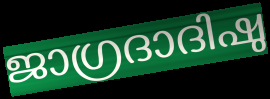
ജാഗ്രദാദിഷു